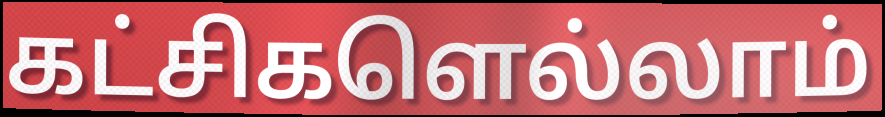
கட்சிகளெல்லாம்